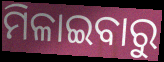
ମିଳାଇବାରୁ